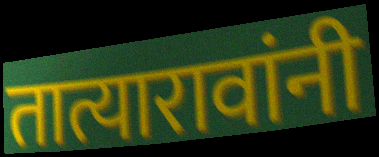
तात्यारावांनी